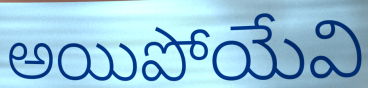
అయిపోయేవి